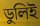
ডুলিই